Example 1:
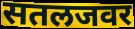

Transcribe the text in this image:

सतलजवर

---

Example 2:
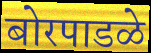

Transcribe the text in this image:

बोरपाडळे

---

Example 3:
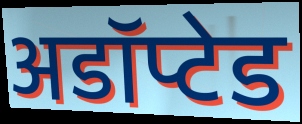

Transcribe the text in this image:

अडॉप्टेड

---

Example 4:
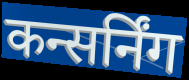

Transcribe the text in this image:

कन्सर्निंग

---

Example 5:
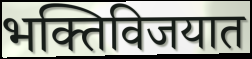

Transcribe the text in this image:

भक्तिविजयात